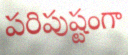
పరిపుష్టంగా